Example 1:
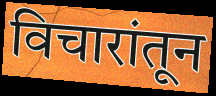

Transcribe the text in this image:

विचारांतून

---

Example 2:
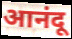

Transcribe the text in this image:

आनंदू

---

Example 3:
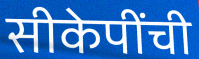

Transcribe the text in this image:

सीकेपींची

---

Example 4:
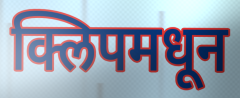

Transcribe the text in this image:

क्लिपमधून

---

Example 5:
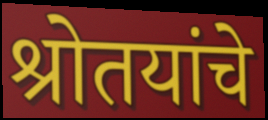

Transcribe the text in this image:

श्रोतयांचे